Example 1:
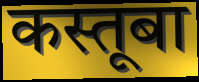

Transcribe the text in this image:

कस्तूबा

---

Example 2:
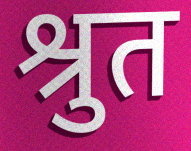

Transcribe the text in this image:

श्रुत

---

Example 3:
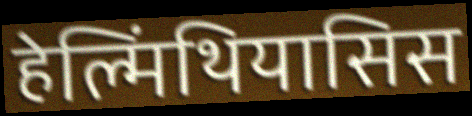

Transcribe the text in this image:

हेल्मिंथियासिस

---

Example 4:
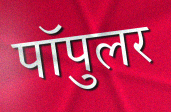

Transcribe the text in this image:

पॉपुलर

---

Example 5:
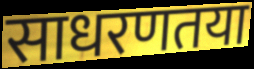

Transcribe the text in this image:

साधरणतया